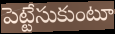
పెట్టేసుకుంటూ